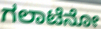
ಗಲಾಟೆನೋ